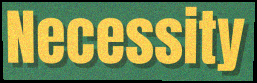
Necessity